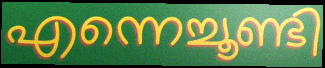
എന്നെച്ചൂണ്ടി